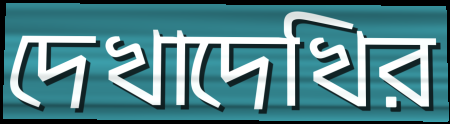
দেখাদেখির